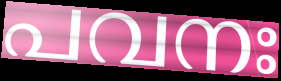
പവനഃ